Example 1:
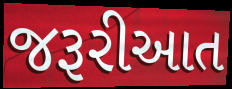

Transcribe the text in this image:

જરૂરીઆત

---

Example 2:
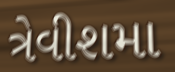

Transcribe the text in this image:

ત્રેવીશમા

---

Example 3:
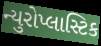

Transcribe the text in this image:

ન્યુરોપ્લાસ્ટિક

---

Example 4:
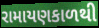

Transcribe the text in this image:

રામાયણકાળથી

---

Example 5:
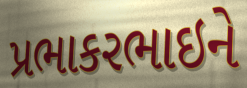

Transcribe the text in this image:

પ્રભાકરભાઇને